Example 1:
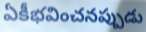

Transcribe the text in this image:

ఏకీభవించనప్పుడు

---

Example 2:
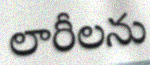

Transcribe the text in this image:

లారీలను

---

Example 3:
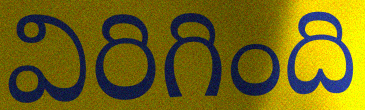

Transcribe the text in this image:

విరిగింది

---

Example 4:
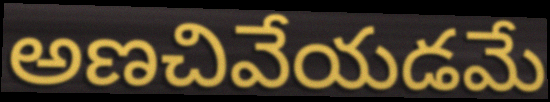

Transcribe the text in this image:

అణచివేయడమే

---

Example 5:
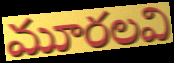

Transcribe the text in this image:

మూరలవి